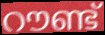
റൗണ്ട്